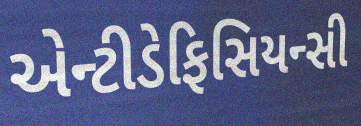
એન્ટીડેફિસિયન્સી